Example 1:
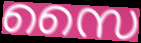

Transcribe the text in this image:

സൈ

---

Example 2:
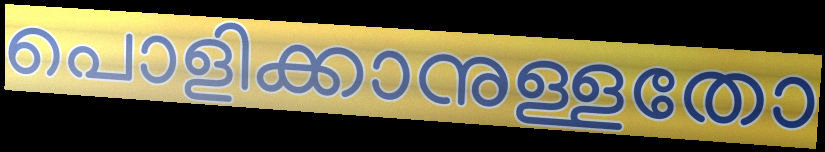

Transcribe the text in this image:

പൊളിക്കാനുള്ളതോ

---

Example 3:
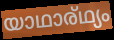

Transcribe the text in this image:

യാഥാര്ഥ്യം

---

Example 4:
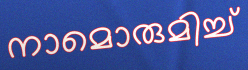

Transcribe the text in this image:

നാമൊരുമിച്ച്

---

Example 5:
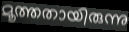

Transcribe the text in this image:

മൂത്തതായിരുന്നു